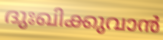
ദുഃഖിക്കുവാൻ